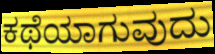
ಕಥೆಯಾಗುವುದು